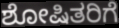
ಶೋಷಿತರಿಗೆ